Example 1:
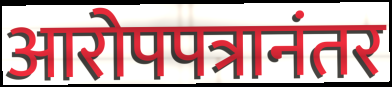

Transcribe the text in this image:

आरोपपत्रानंतर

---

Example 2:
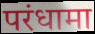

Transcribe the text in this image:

परंधामा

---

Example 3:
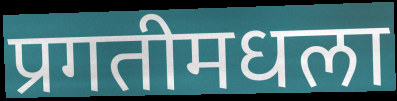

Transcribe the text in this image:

प्रगतीमधला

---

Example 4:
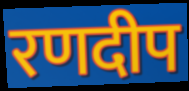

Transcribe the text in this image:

रणदीप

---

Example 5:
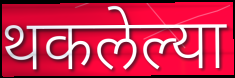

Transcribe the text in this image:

थकलेल्या